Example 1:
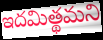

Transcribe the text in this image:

ఇదమిత్థమని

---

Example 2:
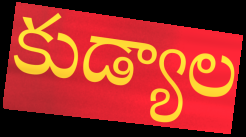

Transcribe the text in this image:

కుడ్యాల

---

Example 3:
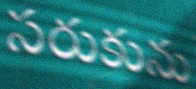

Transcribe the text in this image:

సరుకును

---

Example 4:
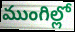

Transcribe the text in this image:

ముంగిల్లో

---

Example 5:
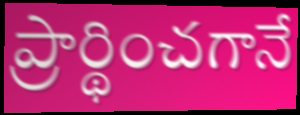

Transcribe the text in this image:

ప్రార్థించగానే